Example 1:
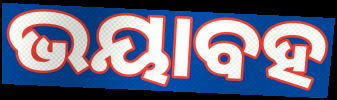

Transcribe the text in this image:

ଭୟାବହ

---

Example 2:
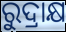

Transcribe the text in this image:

ରୁଦ୍ରାକ୍ଷ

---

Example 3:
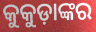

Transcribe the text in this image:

କୁକୁଡ଼ାଙ୍କର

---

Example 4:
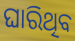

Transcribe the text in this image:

ଘାରିଥିବ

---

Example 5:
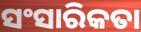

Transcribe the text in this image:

ସଂସାରିକତା